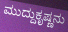
ಮುದ್ದುಕೃಷ್ಣನು